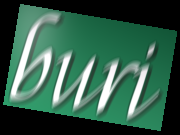
buri